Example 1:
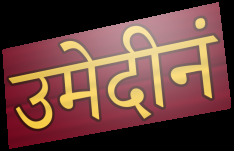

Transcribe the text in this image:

उमेदीनं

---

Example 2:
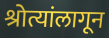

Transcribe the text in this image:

श्रोत्यांलागून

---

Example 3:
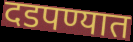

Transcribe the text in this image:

दडपण्यात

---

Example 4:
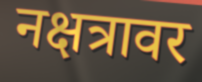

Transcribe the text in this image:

नक्षत्रावर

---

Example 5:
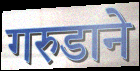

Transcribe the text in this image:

गरुडाने